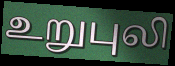
உறுபுலி